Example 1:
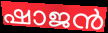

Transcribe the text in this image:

ഷാജൻ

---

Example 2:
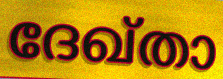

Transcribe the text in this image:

ദേഖ്താ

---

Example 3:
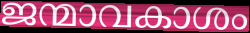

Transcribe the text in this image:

ജന്മാവകാശം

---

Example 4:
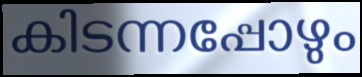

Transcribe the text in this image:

കിടന്നപ്പോഴും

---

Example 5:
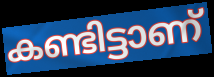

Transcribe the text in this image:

കണ്ടിട്ടാണ്